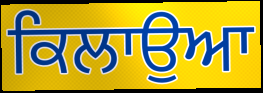
ਕਿਲਾਉਆ